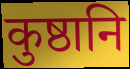
कुष्ठानि